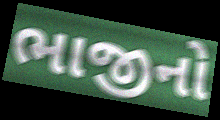
ભાજીનો